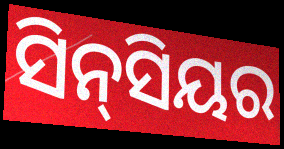
ସିନ୍‌ସିୟର